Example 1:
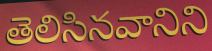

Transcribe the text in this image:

తెలిసినవానిని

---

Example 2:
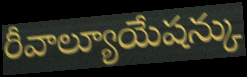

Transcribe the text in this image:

రీవాల్యూయేషన్కు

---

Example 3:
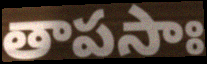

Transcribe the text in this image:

తాపసాః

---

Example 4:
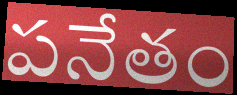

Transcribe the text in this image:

పనేతం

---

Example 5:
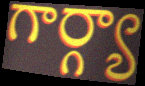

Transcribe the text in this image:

గార్గ్యా